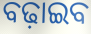
ବଢ଼ାଇବ